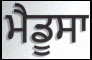
ਮੈਡੂਸਾ